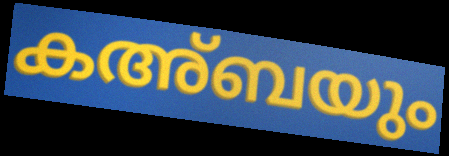
കഅ്ബയും